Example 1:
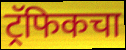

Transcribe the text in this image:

ट्रॅफिकचा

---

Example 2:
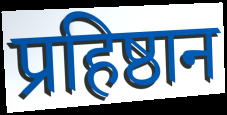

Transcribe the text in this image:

प्रहिष्ठान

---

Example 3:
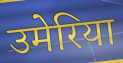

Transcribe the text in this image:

उमेरिया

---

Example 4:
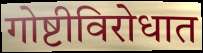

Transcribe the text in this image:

गोष्टीविरोधात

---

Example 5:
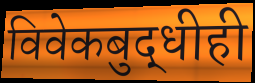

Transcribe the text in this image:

विवेकबुद्धीही